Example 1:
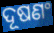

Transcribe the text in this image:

ଦୂଷଣଂ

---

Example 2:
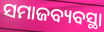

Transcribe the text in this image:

ସମାଜବ୍ୟବସ୍ଥା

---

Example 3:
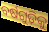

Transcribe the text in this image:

ବର୍ଷଗୁଡ଼ିକୁ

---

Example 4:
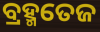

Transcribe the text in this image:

ବ୍ରହ୍ମତେଜ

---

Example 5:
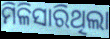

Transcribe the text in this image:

ମିଳିସାରିଥିଲା